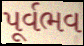
પૂર્વભવ